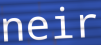
neir